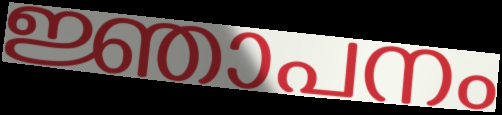
ജ്ഞാപനം